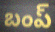
బంప్